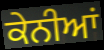
ਕੇਨੀਆਂ